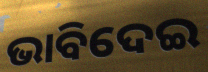
ଭାବିଦେଇ